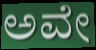
ಅವೇ